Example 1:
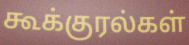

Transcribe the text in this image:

கூக்குரல்கள்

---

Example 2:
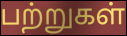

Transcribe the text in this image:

பற்றுகள்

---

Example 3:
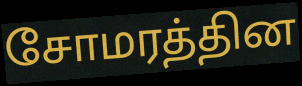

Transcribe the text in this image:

சோமரத்தின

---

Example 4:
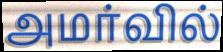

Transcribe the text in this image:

அமர்வில்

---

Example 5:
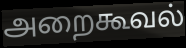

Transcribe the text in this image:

அறைகூவல்